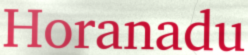
Horanadu